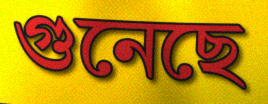
গুনেছে